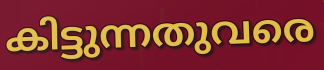
കിട്ടുന്നതുവരെ